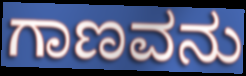
ಗಾಣವನು